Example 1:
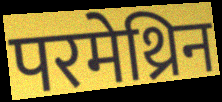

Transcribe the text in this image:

परमेथ्रिन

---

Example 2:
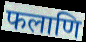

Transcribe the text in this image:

फलाणि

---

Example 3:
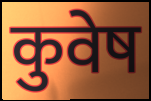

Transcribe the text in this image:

कुवेष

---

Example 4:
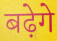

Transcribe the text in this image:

बढ़ेगे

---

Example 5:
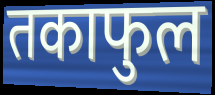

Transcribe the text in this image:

तकाफुल